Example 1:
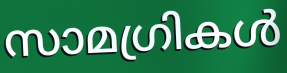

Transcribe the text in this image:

സാമഗ്രികൾ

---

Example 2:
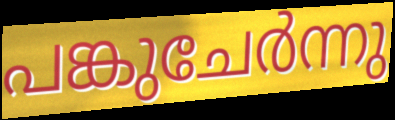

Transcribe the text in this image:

പങ്കുചേർന്നു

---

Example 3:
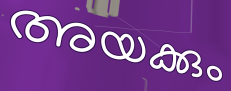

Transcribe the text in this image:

അയക്കും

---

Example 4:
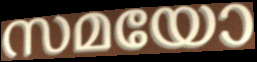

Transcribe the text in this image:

സമയോ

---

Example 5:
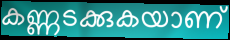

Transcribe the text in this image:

കണ്ണടക്കുകയാണ്